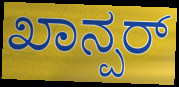
ಖಾನ್ಪರ್